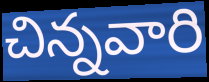
చిన్నవారి